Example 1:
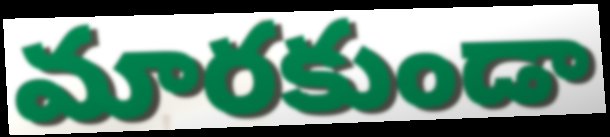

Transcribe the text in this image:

మారకుండా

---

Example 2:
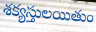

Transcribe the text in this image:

శక్యస్తులయితుం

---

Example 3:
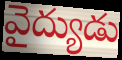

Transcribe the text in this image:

వైద్యుడు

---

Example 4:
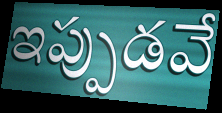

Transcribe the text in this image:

ఇప్పుడవే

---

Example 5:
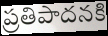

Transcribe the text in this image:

ప్రతిపాదనకి